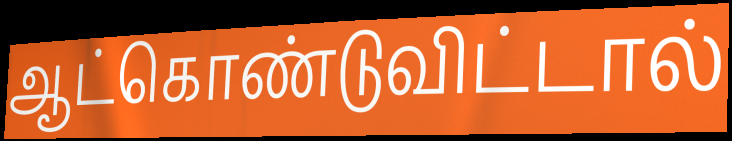
ஆட்கொண்டுவிட்டால்